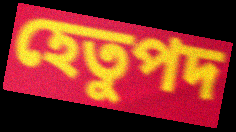
হেতুপদ